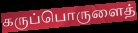
கருப்பொருளைத்